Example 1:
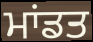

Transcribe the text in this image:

ਮਾਂਡਤ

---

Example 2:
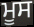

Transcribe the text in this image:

ਮੂਸ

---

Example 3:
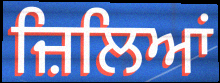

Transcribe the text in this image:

ਜ਼ਿਲਿਆਂ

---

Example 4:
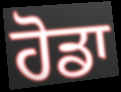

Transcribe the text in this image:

ਹੋਡਾ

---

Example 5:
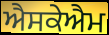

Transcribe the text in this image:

ਐਸਕੇਐਮ